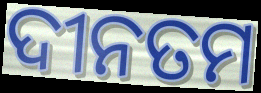
ଦୀନତମ